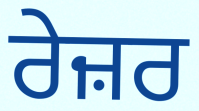
ਰੇਜ਼ਰ